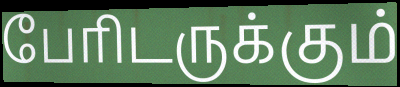
பேரிடருக்கும்